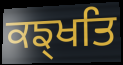
ਕਙ੍ਖਤਿ